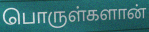
பொருள்களான்